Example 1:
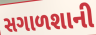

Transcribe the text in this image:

સગાળશાની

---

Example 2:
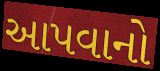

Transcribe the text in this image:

આપવાનો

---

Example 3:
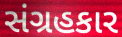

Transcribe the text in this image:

સંગ્રહકાર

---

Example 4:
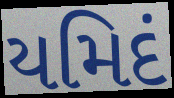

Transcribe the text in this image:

યમિદં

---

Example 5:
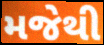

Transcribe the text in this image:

મજેથી